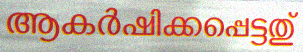
ആകർഷിക്കപ്പെട്ടതു്